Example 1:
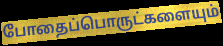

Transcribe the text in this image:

போதைப்பொருட்களையும்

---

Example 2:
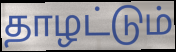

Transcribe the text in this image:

தாழட்டும்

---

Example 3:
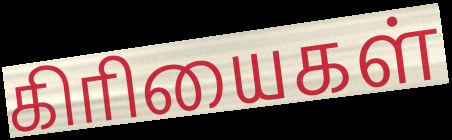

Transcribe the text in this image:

கிரியைகள்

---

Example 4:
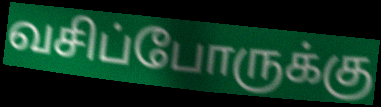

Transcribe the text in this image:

வசிப்போருக்கு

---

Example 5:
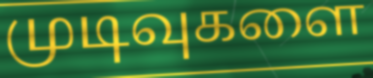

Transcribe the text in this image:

முடிவுகளை